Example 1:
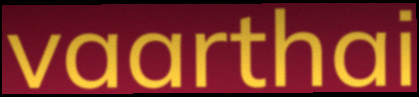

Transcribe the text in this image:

vaarthai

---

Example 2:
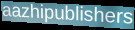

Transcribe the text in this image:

aazhipublishers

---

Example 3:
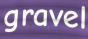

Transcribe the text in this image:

gravel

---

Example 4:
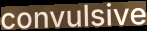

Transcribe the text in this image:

convulsive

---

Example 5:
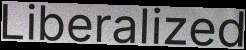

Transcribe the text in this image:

Liberalized